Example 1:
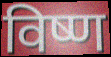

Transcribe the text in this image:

विष्ण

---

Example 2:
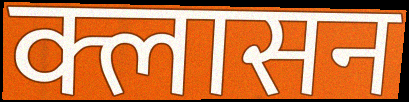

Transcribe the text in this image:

क्लासन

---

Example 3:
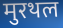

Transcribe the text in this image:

मुरथल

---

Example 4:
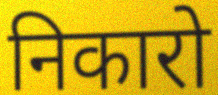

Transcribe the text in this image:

निकारो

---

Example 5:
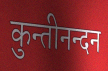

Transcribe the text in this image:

कुन्तीनन्दन